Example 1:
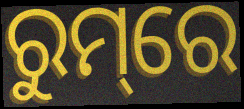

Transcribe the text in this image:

ରୁମ୍‌ରେ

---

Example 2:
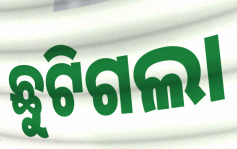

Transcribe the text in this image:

ଛୁଟିଗଲା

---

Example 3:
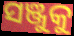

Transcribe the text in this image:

ସଞ୍ଜୁକୁ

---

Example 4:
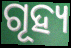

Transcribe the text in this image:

ଗୂହ୍ୟ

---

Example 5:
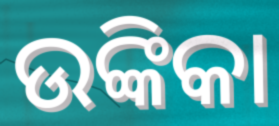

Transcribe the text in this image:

ଉଙ୍କିକା